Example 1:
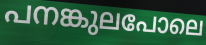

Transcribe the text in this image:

പനങ്കുലപോലെ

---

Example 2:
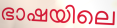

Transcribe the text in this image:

ഭാഷയിലെ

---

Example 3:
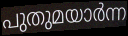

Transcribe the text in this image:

പുതുമയാർന്ന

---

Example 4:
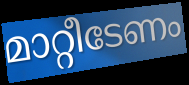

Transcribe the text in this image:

മാറ്റീടേണം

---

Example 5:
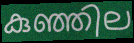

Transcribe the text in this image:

കുഞ്ഞില